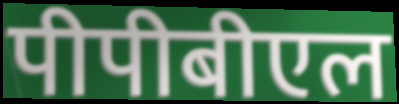
पीपीबीएल